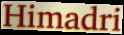
Himadri